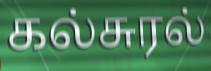
கல்சுரல்